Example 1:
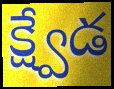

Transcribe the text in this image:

క్ష్వేడ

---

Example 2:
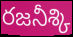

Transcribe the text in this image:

రజనీశ్కి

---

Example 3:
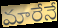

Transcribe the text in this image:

మారేనే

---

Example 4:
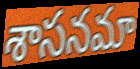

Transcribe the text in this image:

శాసనమా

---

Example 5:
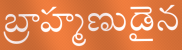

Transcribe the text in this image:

బ్రాహ్మణుడైన